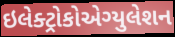
ઇલેક્ટ્રોકોએગ્યુલેશન